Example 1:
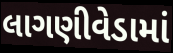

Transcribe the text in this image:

લાગણીવેડામાં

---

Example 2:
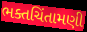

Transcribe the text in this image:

ભક્તચિંતામણી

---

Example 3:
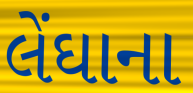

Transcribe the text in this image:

લેંઘાના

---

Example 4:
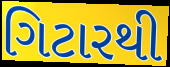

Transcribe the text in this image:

ગિટારથી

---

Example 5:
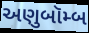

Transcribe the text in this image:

અણુબૉમ્બ